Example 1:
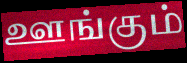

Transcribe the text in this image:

ஊங்கும்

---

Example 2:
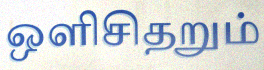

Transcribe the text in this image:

ஒளிசிதறும்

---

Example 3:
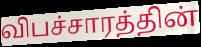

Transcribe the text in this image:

விபச்சாரத்தின்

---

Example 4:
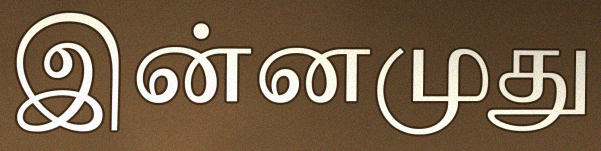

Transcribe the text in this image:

இன்னமுது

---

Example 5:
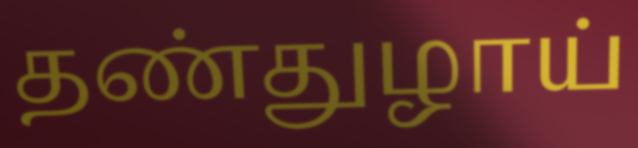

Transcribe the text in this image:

தண்துழாய்